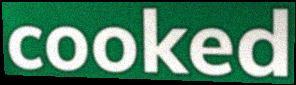
cooked